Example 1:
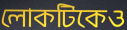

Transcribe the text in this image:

লোকটিকেও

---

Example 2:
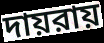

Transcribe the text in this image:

দায়রায়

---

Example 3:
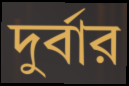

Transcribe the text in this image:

দুর্বার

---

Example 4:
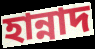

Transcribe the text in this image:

হান্নাদ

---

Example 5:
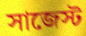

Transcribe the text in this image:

সাজেস্ট